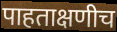
पाहताक्षणीच